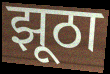
झूठा